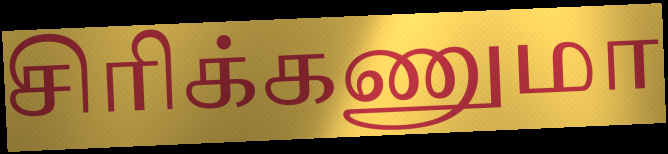
சிரிக்கணுமா